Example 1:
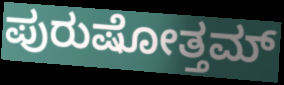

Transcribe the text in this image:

ಪುರುಷೋತ್ತಮ್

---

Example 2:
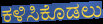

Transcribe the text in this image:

ಕಳಿಸಿಕೊಡಲು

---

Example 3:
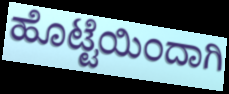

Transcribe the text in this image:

ಹೊಟ್ಟೆಯಿಂದಾಗಿ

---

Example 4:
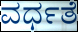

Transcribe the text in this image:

ವರ್ಧತೆ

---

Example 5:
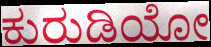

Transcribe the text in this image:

ಕುರುಡಿಯೋ